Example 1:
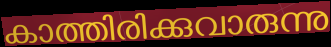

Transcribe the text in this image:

കാത്തിരിക്കുവാരുന്നു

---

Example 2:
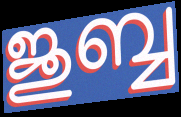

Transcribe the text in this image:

ജുബ്ബ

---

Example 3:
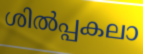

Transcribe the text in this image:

ശിൽപ്പകലാ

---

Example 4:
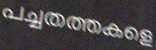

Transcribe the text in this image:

പച്ചതത്തകളെ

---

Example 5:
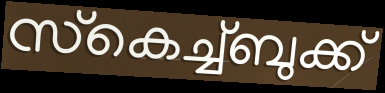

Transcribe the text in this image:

സ്‌കെച്ച്ബുക്ക്